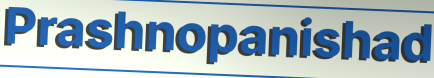
Prashnopanishad